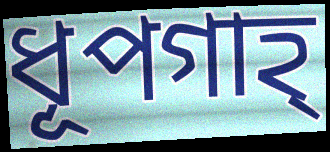
ধূপগাহ্